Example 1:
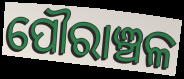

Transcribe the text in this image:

ପୌରାଞ୍ଚଳ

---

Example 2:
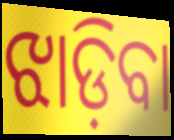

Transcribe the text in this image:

ଝାଡ଼ିବା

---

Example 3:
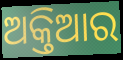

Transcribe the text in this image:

ଅକ୍ତିଆର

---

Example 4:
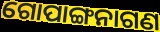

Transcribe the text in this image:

ଗୋପାଙ୍ଗନାଗଣ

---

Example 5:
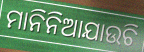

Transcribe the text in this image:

ମାନିନିଆଯାଉଚି